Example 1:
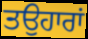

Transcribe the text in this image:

ਤਉਹਾਰਾਂ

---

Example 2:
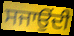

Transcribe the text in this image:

ਸਜਾਉਂਦੀ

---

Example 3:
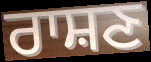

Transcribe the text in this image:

ਰਾਸ਼ਣ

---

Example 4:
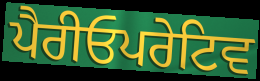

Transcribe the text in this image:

ਪੈਰੀਓਪਰੇਟਿਵ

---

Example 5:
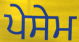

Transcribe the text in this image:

ਪੇਸੇਮ